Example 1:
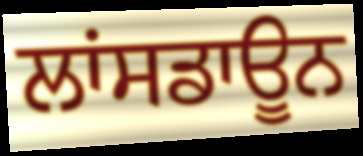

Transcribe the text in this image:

ਲਾਂਸਡਾਊਨ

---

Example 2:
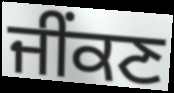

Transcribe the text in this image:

ਜੀਂਕਣ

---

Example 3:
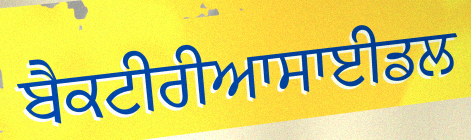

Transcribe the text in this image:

ਬੈਕਟੀਰੀਆਸਾਈਡਲ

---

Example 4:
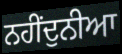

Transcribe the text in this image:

ਨਹੀਂਦੁਨੀਆ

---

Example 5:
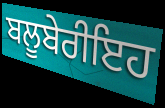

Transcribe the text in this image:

ਬਲੂਬੇਰੀਇਹ